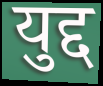
युद्द